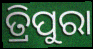
ତ୍ରିପୁରା